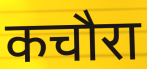
कचौरा